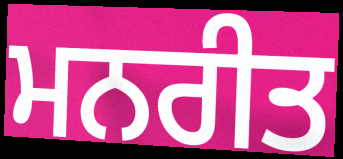
ਮਨਰੀਤ